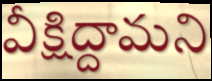
వీక్షిద్దామని